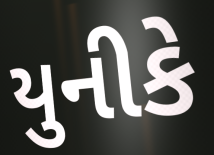
યુનીકે